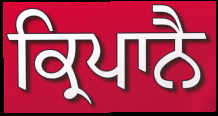
ਕ੍ਰਿਪਾਨੈ